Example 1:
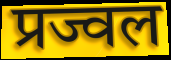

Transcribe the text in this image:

प्रज्वल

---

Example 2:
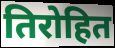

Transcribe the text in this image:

तिरोहित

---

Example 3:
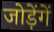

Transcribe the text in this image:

जोड़ेंगें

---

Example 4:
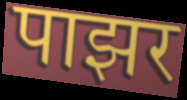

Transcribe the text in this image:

पाझर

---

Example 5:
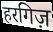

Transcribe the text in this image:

हरगिज़